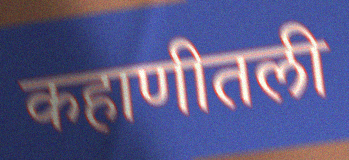
कहाणीतली